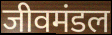
जीवमंडल